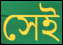
সেই